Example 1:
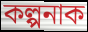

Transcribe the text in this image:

কল্পনাক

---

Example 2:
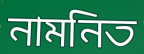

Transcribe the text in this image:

নামনিত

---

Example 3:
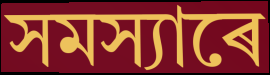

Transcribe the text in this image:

সমস্যাৰে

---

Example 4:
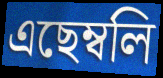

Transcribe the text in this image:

এছেম্বলি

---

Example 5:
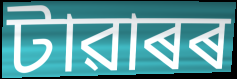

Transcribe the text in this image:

টাৱাৰৰ